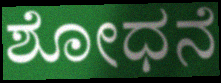
ಶೋಧನೆ